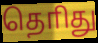
தெரிது